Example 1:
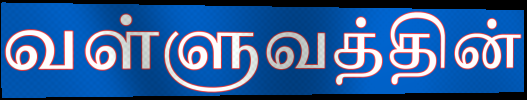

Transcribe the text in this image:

வள்ளுவத்தின்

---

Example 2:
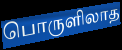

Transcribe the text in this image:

பொருளிலாத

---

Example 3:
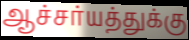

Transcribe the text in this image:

ஆச்சர்யத்துக்கு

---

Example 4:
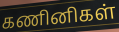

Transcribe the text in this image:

கணினிகள்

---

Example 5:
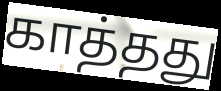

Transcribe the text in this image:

காத்தது